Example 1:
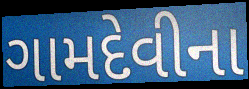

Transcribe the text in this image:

ગામદેવીના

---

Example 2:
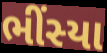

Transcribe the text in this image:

ભીંસ્યા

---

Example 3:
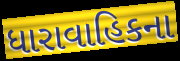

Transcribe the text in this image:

ધારાવાહિકના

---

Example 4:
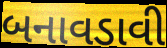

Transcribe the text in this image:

બનાવડાવી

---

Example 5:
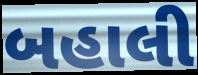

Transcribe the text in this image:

બહાલી